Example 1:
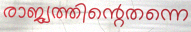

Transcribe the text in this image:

രാജ്യത്തിന്റെതന്നെ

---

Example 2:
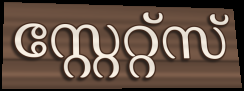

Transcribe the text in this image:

സ്റ്റേറ്റ്സ്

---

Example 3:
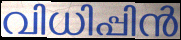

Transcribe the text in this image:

വിധിപ്പിൻ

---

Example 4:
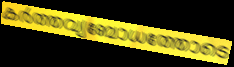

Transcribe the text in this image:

കർത്തവ്യബോധത്തോടെ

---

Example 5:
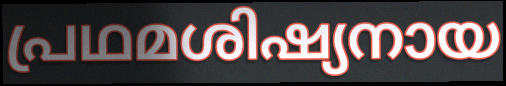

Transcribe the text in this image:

പ്രഥമശിഷ്യനായ